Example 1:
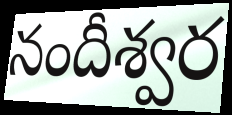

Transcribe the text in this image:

నందీశ్వర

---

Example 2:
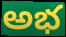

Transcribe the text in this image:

అభ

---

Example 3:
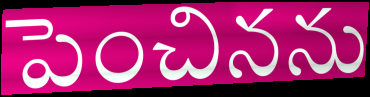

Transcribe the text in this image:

పెంచినను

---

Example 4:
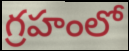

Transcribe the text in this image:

గ్రహంలో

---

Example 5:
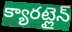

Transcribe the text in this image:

క్యారట్లైన్